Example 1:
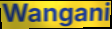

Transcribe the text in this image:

Wangani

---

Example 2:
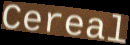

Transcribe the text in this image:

Cereal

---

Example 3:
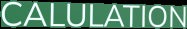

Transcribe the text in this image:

CALULATION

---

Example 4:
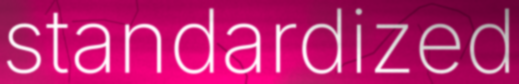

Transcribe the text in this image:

standardized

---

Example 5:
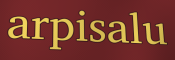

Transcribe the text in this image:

arpisalu